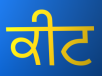
ਕੀਟ